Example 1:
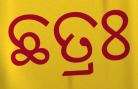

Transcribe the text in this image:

ଛତ୍ରଃ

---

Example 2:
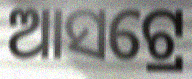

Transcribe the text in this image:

ଆସଟ୍ରେ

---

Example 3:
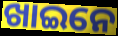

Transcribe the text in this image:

ଖାଇନେ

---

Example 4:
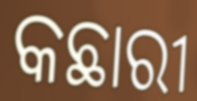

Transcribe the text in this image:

କଛାରୀ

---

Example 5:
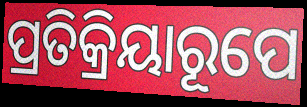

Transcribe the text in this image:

ପ୍ରତିକ୍ରିୟାରୂପେ